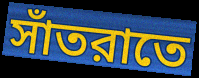
সাঁতরাতে